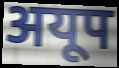
अयूप